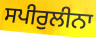
ਸਪੀਰੁਲੀਨਾ